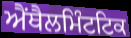
ਐਂਥੈਲਮਿੰਟਟਿਕ